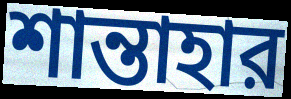
শান্তাহার